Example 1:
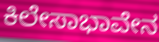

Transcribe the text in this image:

ಕಿಲೇಸಾಭಾವೇನ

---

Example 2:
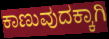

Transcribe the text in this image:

ಕಾಣುವುದಕ್ಕಾಗಿ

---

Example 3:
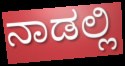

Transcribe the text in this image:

ನಾಡಲ್ಲಿ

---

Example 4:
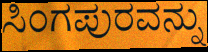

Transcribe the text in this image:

ಸಿಂಗಪುರವನ್ನು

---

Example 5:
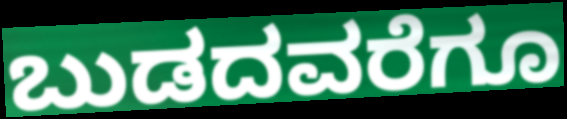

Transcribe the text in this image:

ಬುಡದವರೆಗೂ